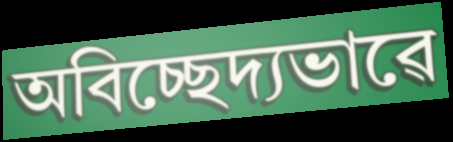
অবিচ্ছেদ্যভাৱে